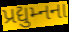
પ્રદ્યુમ્નના